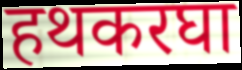
हथकरघा